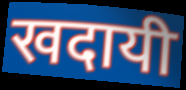
खदायी